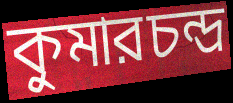
কুমারচন্দ্র